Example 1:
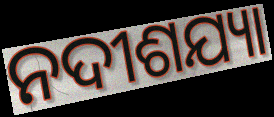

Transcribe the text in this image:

ନଦୀଶଯ୍ୟା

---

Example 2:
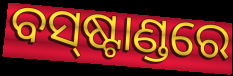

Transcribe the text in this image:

ବସ୍‌ଷ୍ଟାଣ୍ଡରେ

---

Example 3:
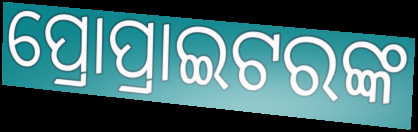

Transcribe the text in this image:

ପ୍ରୋପ୍ରାଇଟରଙ୍କ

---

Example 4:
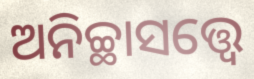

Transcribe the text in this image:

ଅନିଚ୍ଛାସତ୍ତ୍ବେ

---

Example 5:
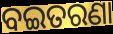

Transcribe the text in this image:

ବଇତରଣା